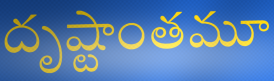
దృష్టాంతమూ